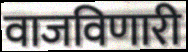
वाजविणारी